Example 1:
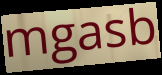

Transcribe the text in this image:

mgasb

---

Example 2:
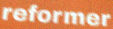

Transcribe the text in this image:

reformer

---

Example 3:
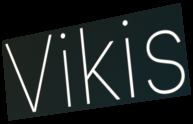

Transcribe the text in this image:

Vikis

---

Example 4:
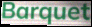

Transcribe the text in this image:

Barquet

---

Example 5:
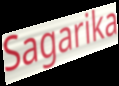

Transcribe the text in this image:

Sagarika